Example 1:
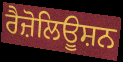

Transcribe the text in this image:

ਰੈਜ਼ੋਲਿਊਸ਼ਨ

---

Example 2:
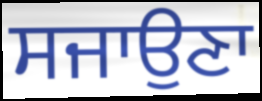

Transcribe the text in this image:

ਸਜਾਉਣਾ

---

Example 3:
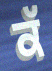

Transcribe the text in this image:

ਕੱ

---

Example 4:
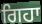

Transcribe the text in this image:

ਗਿਹਾ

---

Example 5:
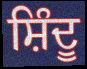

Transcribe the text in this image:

ਸ਼ਿੰਦੂ